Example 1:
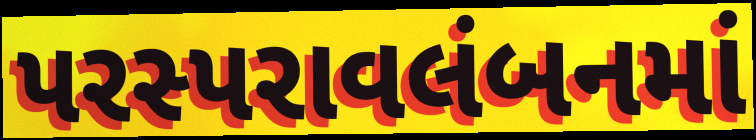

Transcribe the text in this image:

પરસ્પરાવલંબનમાં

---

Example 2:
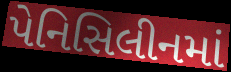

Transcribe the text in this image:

પેનિસિલીનમાં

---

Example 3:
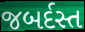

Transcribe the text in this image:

જબર્દસ્ત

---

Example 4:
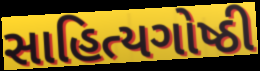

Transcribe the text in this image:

સાહિત્યગોષ્ઠી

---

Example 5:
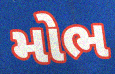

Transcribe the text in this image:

મોભ